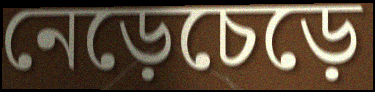
নেড়েচেড়ে